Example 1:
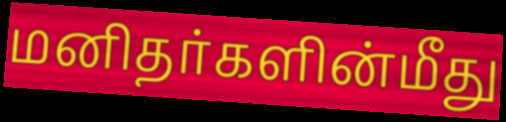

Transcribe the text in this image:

மனிதர்களின்மீது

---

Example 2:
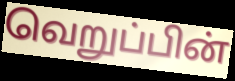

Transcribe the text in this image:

வெறுப்பின்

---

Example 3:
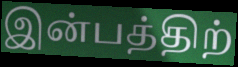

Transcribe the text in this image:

இன்பத்திற்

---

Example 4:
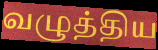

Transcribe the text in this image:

வழுத்திய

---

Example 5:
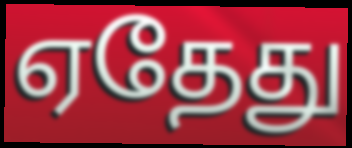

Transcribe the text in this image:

ஏதேது